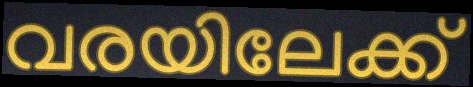
വരയിലേക്ക്